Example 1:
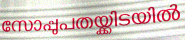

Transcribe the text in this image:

സോപ്പുപതയ്ക്കിടയിൽ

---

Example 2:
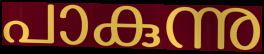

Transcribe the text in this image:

പാകുന്നു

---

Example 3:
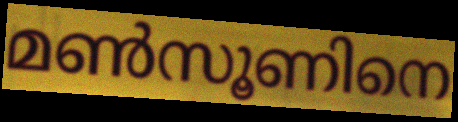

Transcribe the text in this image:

മൺസൂണിനെ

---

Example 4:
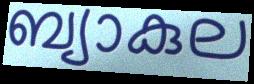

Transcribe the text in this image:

ബ്യാകുല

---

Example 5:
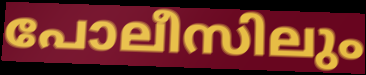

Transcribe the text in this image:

പോലീസിലും